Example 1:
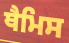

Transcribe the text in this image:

ਥੈਮਿਸ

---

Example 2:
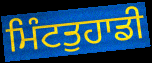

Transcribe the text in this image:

ਮਿੰਟਤੁਹਾਡੀ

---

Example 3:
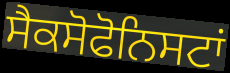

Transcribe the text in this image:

ਸੈਕਸੋਫੋਨਿਸਟਾਂ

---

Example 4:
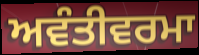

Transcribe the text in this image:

ਅਵੰਤੀਵਰਮਾ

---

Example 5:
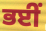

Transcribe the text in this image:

ਭਈਂ